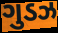
ગુડઝ